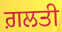
ਗ਼ਲਤੀ